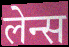
लेन्स